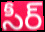
సీర్